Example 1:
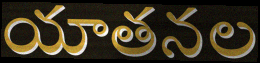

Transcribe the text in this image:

యాతనల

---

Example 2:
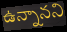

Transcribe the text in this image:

ఉన్నానని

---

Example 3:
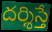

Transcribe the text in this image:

దర్శిస్తే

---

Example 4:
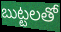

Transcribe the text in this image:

బుట్టలతో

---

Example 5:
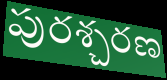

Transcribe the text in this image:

పురశ్చరణ